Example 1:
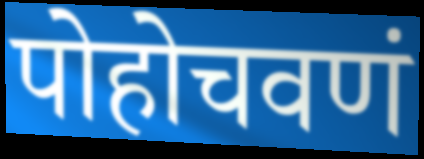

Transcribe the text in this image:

पोहोचवणं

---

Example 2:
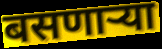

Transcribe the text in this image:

बसणार्‍या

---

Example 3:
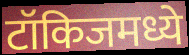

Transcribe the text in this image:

टॉकिजमध्ये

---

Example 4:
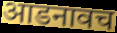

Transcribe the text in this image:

आडनावच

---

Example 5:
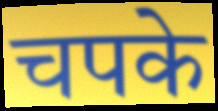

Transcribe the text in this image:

चपके